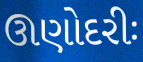
ઊણોદરીઃ